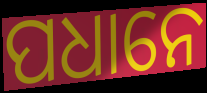
ପଧାନେ